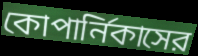
কোপার্নিকাসের